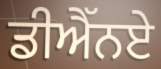
ਡੀਐੱਨਏ